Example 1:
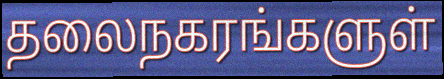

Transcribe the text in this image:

தலைநகரங்களுள்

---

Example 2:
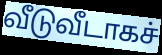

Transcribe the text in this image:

வீடுவீடாகச்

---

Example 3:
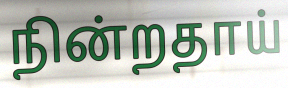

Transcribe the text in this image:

நின்றதாய்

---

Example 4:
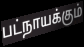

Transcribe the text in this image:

பட்நாயக்கும்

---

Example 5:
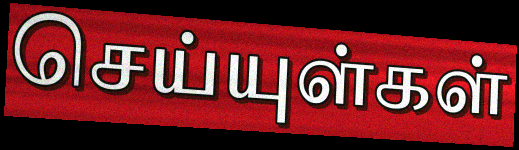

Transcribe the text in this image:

செய்யுள்கள்